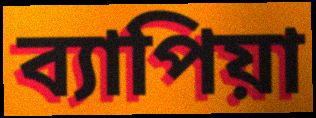
ব্যাপিয়া